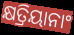
କ୍ଷତ୍ରିୟାନାଂ